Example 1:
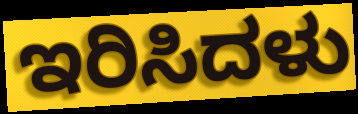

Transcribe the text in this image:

ಇರಿಸಿದಳು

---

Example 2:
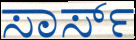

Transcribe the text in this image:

ಸಾರ್ಸ್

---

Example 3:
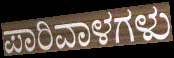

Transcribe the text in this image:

ಪಾರಿವಾಳಗಳು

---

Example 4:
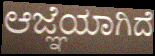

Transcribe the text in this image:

ಆಜ್ಞೆಯಾಗಿದೆ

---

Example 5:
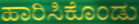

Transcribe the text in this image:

ಹಾರಿಸಿಕೊಂಡು